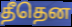
தீதென